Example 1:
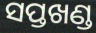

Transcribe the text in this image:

ସପ୍ତଖଣ୍ଡ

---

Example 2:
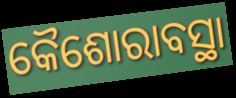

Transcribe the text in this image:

କୈଶୋରାବସ୍ଥା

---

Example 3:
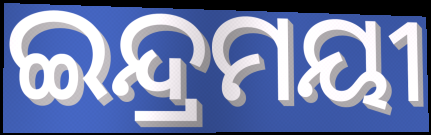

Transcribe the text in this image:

ଇନ୍ଦ୍ରମୟୀ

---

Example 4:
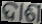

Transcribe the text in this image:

ଦାଶ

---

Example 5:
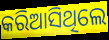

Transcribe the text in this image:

କରିଆସିଥିଲେ